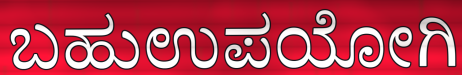
ಬಹುಉಪಯೋಗಿ